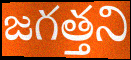
జగత్తని